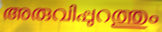
അരുവിപ്പുറത്തും